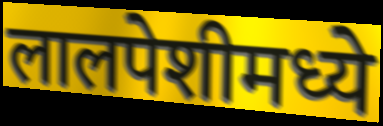
लालपेशीमध्ये